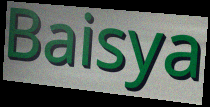
Baisya